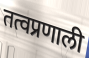
तत्वप्रणाली